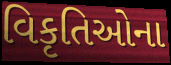
વિકૃતિઓના